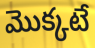
మొక్కటే